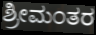
ಶ್ರೀಮಂತರ